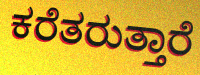
ಕರೆತರುತ್ತಾರೆ